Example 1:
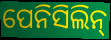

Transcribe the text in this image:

ପେନିସିଲିନ୍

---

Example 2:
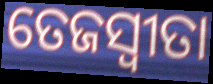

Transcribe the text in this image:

ତେଜସ୍ଵୀତା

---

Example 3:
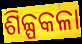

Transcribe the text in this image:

ଶିଳ୍ପକଳା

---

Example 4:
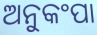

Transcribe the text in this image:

ଅନୁକଂପା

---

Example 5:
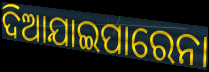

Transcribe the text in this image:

ଦିଆଯାଇପାରେନା